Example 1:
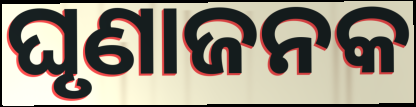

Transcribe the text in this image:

ଘୃଣାଜନକ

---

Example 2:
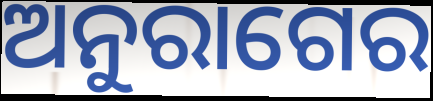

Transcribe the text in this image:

ଅନୁରାଗେର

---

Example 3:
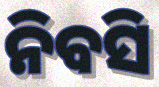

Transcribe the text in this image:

ନିବସି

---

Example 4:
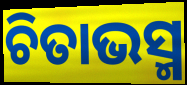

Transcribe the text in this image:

ଚିତାଭସ୍ମ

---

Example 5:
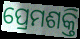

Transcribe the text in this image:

ପ୍ରେମଶକ୍ତି